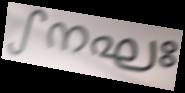
ഽനഘഃ